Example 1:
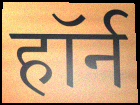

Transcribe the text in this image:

हॉर्न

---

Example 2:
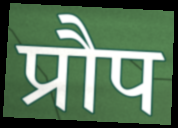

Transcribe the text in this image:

प्रौप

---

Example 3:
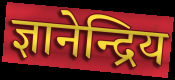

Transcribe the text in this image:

ज्ञानेन्द्रिय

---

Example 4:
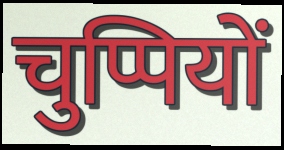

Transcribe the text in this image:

चुप्पियों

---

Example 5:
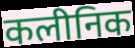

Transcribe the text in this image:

कलीनिक